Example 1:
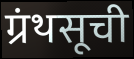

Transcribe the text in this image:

ग्रंथसूची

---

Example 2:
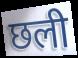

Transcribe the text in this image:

छली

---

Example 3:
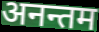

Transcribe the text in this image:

अनन्तम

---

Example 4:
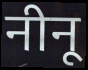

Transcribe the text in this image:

नीनू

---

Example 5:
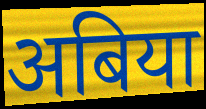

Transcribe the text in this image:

अबिया